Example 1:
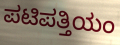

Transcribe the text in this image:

ಪಟಿಪತ್ತಿಯಂ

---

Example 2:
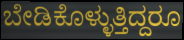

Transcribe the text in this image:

ಬೇಡಿಕೊಳ್ಳುತ್ತಿದ್ದರೂ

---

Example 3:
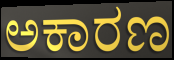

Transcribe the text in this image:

ಅಕಾರಣ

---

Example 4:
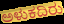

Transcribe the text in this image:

ಅಳುಕದಿರು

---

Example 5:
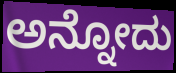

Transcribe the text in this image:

ಅನ್ನೋದು